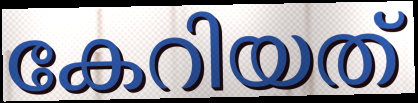
കേറിയത്